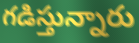
గడిస్తున్నారు